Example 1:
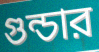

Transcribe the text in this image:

গুন্ডার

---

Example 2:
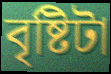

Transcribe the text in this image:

বৃষ্টিটা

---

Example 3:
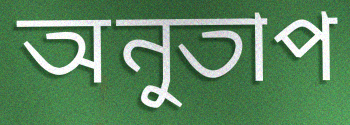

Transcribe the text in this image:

অনুতাপ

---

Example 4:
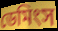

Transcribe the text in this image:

ডেমিংস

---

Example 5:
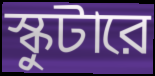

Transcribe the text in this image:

স্কুটারে